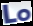
Lo